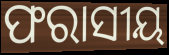
ଫରାସୀୟ